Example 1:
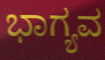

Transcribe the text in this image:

ಭಾಗ್ಯವ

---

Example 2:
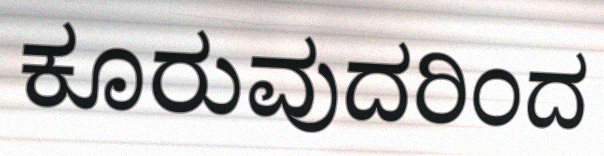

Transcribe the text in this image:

ಕೂರುವುದರಿಂದ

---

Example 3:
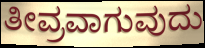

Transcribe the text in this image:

ತೀವ್ರವಾಗುವುದು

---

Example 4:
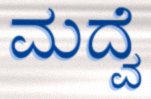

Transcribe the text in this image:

ಮದ್ವೆ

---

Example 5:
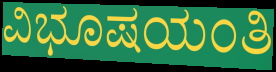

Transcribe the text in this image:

ವಿಭೂಷಯಂತಿ